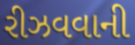
રીઝવવાની